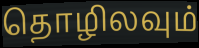
தொழிலவும்